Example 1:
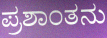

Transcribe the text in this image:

ಪ್ರಶಾಂತನು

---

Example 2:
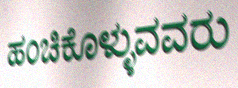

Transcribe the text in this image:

ಹಂಚಿಕೊಳ್ಳುವವರು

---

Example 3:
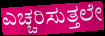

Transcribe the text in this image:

ಎಚ್ಚರಿಸುತ್ತಲೇ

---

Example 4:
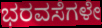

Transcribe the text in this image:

ಭರವಸೆಗಳೇ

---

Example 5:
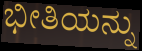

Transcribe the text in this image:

ಭೀತಿಯನ್ನು